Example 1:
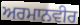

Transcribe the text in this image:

ਅਰਮਾਨਵੀਰ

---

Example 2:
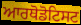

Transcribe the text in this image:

ਆਰਥੋਡੋਟਿਸਟ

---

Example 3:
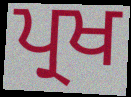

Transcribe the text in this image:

ਪ੍ਰਖ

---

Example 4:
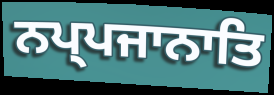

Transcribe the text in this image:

ਨਪ੍ਪਜਾਨਾਤਿ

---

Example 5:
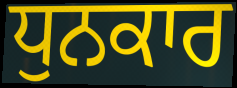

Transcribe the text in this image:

ਧੁਨਕਾਰ